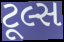
ટૂલ્સ